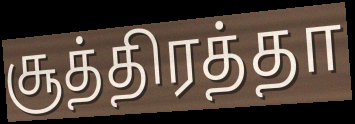
சூத்திரத்தா